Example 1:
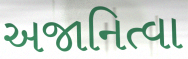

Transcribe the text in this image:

અજાનિત્વા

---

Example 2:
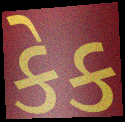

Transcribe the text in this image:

કેક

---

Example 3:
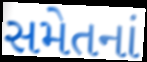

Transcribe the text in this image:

સમેતનાં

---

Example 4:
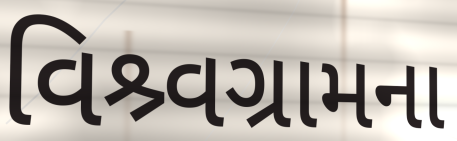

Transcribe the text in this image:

વિશ્ર્વગ્રામના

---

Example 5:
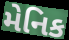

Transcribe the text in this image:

મેનિક